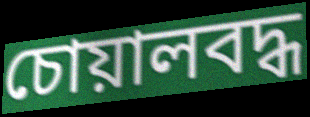
চোয়ালবদ্ধ